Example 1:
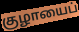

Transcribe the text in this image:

குழாயைப்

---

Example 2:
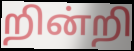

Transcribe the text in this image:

றின்றி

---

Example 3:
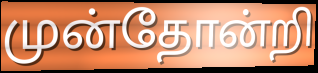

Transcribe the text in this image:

முன்தோன்றி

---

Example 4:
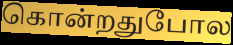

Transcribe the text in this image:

கொன்றதுபோல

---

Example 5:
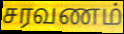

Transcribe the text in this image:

சரவணம்